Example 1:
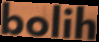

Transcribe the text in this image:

bolih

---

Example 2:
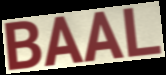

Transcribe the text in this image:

BAAL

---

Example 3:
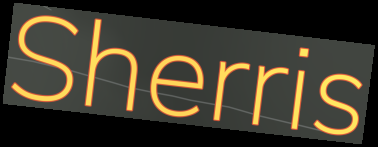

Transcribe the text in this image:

Sherris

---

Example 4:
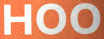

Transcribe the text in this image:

HOO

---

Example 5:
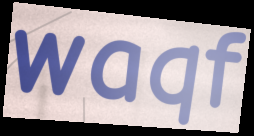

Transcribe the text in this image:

waqf